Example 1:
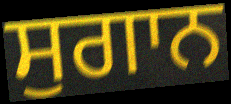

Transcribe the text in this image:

ਸੁਗਾਨ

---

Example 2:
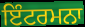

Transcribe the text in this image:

ਇੰਟਰਮਨਾ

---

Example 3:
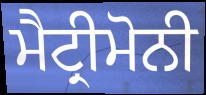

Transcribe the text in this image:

ਮੈਟ੍ਰੀਮੋਨੀ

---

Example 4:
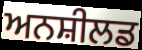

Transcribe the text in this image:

ਅਨਸ਼ੀਲਡ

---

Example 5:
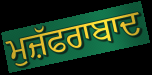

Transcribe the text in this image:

ਮੁਜ਼ੱਫਰਾਬਾਦ